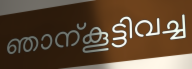
ഞാന്കൂട്ടിവച്ച